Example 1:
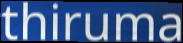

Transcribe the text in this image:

thiruma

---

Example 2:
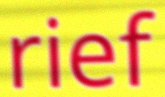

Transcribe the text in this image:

rief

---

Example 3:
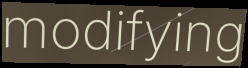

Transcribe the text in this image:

modifying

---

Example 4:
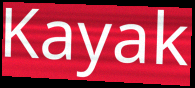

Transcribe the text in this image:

Kayak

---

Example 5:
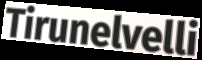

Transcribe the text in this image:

Tirunelvelli